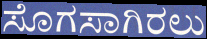
ಸೊಗಸಾಗಿರಲು